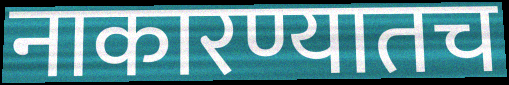
नाकारण्यातच